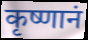
कृष्णानं